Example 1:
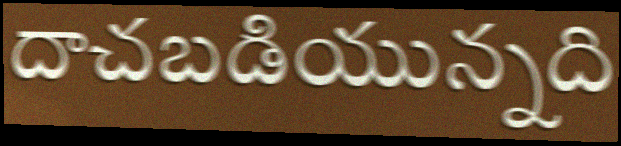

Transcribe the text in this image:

దాచబడియున్నది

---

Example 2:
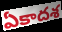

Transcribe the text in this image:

ఏకాదశ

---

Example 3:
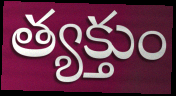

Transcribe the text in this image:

త్యక్తుం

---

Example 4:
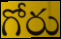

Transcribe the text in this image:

గోరు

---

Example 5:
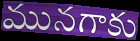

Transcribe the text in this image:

మునగాకు